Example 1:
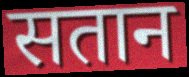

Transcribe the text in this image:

सतान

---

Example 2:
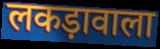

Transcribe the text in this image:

लकड़ावाला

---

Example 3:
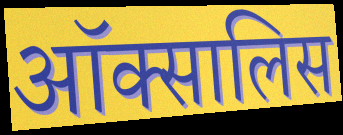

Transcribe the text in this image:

ऑक्सालिस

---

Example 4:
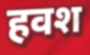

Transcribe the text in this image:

हवश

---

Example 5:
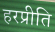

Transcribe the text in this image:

हरप्रीति